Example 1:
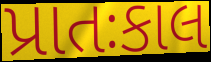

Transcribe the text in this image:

પ્રાતઃકાલ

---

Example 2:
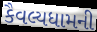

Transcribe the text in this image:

કૈવલ્યધામની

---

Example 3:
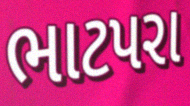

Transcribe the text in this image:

ભાટપરા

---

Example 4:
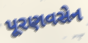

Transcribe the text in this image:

પૂરણવસેન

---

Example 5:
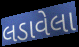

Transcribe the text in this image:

લડાવેલા